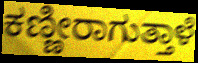
ಕಣ್ಣೀರಾಗುತ್ತಾಳೆ